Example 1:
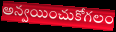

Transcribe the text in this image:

అన్వయించుకోగలం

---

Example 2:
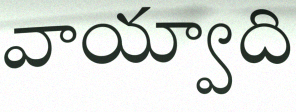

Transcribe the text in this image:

వాయ్వాది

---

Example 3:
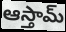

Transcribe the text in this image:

ఆస్తామ్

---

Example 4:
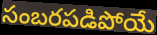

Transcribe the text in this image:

సంబరపడిపోయే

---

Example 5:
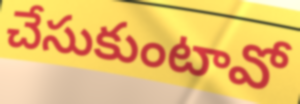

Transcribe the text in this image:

చేసుకుంటావో